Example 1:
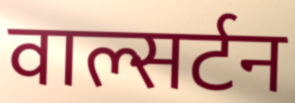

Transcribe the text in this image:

वाल्सर्टन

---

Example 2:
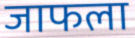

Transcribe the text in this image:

जाफला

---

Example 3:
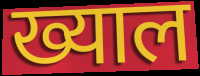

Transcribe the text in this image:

ख्याल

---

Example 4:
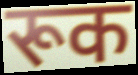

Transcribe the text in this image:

रूक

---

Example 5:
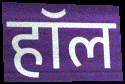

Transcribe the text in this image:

हॉल